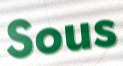
Sous